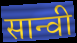
सान्वी